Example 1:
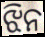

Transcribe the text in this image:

ଝିନ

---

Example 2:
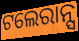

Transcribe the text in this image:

ଟଲେରାନ୍ସ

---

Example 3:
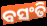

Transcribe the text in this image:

ବସଂତି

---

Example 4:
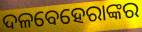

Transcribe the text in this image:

ଦଳବେହେରାଙ୍କର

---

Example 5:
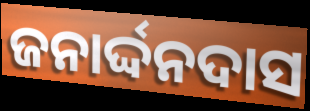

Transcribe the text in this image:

ଜନାର୍ଦ୍ଦନଦାସ